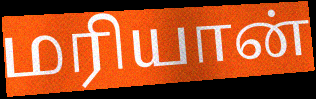
மரியான்